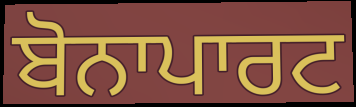
ਬੋਨਾਪਾਰਟ